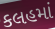
કલહમાં